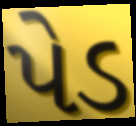
પેડ